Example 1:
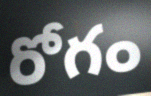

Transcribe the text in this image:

రోగం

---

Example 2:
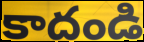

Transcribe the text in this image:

కాదండి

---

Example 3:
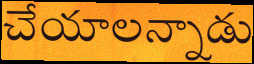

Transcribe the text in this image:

చేయాలన్నాడు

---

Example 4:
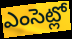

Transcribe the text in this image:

ఎంసెట్లో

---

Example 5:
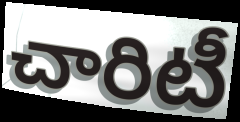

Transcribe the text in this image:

చారిటీ